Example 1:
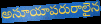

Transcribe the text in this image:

అసూయాపరురాలైన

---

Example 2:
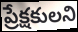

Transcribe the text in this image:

ప్రేక్షకులని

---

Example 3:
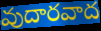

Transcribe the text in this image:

వుదారవాద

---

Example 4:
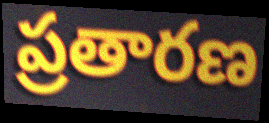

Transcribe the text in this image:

ప్రతారణ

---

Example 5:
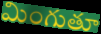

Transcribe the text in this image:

మింగుతూ